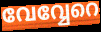
വേവ്വേറെ